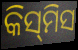
କିସ୍‌ମିସ